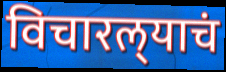
विचारल्याचं